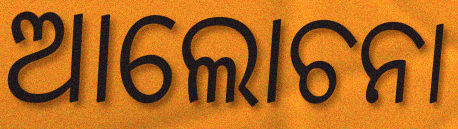
ଆଲୋଚନା